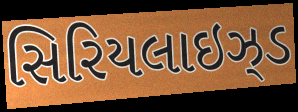
સિરિયલાઇઝ્ડ